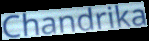
Chandrika